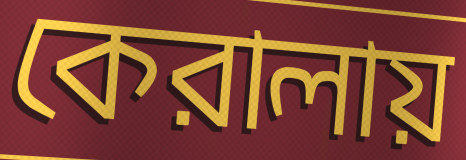
কেরালায়